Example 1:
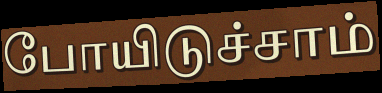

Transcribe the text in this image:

போயிடுச்சாம்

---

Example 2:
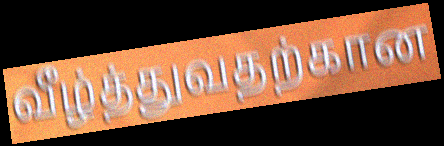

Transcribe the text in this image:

வீழ்த்துவதற்கான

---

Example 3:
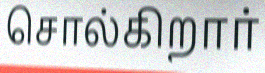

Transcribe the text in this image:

சொல்கிறார்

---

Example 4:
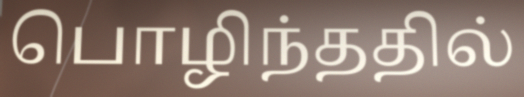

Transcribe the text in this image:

பொழிந்ததில்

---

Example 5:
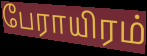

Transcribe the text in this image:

பேராயிரம்